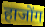
हाजोंग